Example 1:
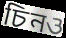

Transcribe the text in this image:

চিনও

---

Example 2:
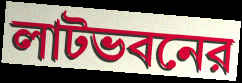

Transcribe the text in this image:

লাটভবনের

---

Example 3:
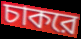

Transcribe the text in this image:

চাকরে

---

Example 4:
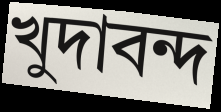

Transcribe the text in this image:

খুদাবন্দ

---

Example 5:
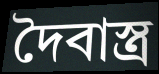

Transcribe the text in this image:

দৈবাস্ত্র